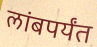
लांबपर्यंत